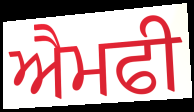
ਐਮਫੀ